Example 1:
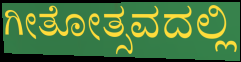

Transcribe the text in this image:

ಗೀತೋತ್ಸವದಲ್ಲಿ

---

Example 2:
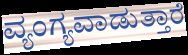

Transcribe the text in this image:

ವ್ಯಂಗ್ಯವಾಡುತ್ತಾರೆ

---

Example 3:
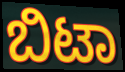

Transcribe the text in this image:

ಬಿಟಾ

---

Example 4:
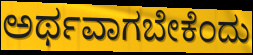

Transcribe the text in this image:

ಅರ್ಥವಾಗಬೇಕೆಂದು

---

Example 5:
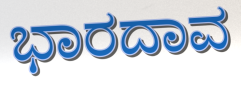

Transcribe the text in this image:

ಭಾರದಾವ